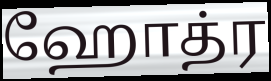
ஹோத்ர